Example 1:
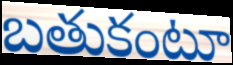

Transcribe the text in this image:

బతుకంటూ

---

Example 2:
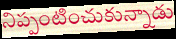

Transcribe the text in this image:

నిప్పంటించుకున్నాడు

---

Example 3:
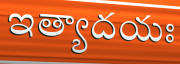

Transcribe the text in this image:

ఇత్యాదయః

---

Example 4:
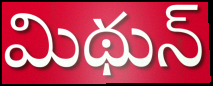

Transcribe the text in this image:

మిథున్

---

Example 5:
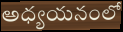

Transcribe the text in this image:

అధ్యయనంలో